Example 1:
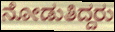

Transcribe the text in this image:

ನೋಡುತಿದ್ದರು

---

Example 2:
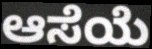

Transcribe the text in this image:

ಆಸೆಯೆ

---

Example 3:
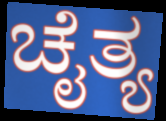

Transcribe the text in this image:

ಚೈತ್ಯ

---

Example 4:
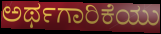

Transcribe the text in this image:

ಅರ್ಥಗಾರಿಕೆಯು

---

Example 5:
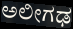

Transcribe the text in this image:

ಅಲೀಗಢ